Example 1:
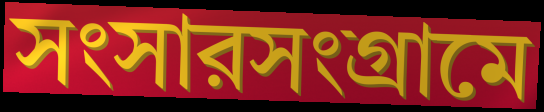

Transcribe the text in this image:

সংসারসংগ্রামে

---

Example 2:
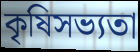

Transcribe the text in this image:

কৃষিসভ্যতা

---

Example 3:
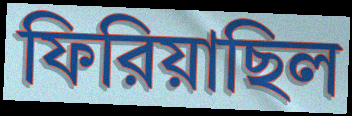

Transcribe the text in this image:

ফিরিয়াছিল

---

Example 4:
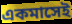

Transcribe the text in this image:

একমাসেই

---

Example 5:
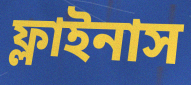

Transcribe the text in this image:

ফ্লাইনাস